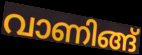
വാണിങ്ങ്